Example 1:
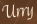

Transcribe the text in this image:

Urry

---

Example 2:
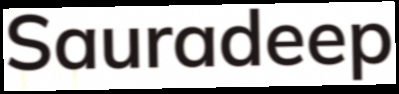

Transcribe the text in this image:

Sauradeep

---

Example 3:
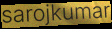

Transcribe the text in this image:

sarojkumar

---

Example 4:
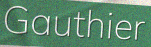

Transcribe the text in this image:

Gauthier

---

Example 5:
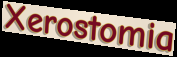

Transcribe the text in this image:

Xerostomia